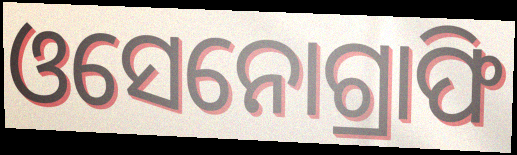
ଓସେନୋଗ୍ରାଫି